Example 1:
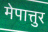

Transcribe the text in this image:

मेपात्तुर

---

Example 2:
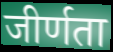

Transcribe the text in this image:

जीर्णता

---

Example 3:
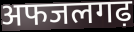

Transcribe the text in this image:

अफजलगढ़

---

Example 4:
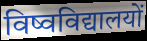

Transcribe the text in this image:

विष्वविद्यालयों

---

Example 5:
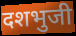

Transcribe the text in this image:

दशभुजी